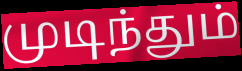
முடிந்தும்